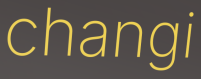
changi